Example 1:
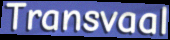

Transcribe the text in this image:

Transvaal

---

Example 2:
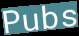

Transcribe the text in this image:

Pubs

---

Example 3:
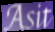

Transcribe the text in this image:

Asit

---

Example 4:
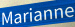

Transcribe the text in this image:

Marianne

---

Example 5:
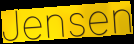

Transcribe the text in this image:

Jensen